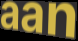
aan